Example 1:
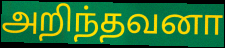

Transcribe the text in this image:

அறிந்தவனா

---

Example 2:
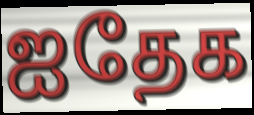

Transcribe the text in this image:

ஐதேக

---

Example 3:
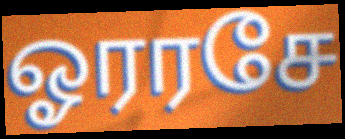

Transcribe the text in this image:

ஓரரசே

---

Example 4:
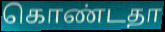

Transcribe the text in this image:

கொண்டதா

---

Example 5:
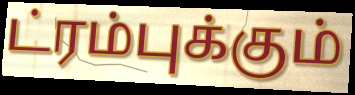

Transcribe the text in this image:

ட்ரம்புக்கும்